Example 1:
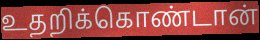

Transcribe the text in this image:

உதறிக்கொண்டான்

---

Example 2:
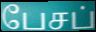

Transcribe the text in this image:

பேசப்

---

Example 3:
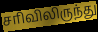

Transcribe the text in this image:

சரிவிலிருந்து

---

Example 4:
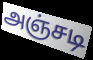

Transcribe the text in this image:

அஞ்சடி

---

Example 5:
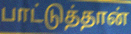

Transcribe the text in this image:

பாட்டுத்தான்